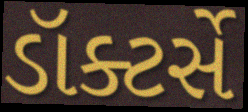
ડૉક્ટર્સે